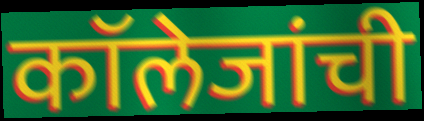
कॉलेजांची